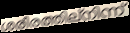
ശരീരത്തില്നിന്ന്